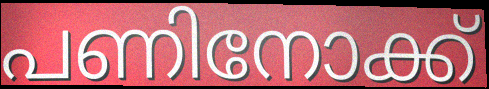
പണിനോക്ക്